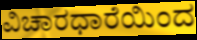
ವಿಚಾರಧಾರೆಯಿಂದ